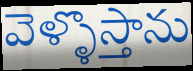
వెళ్ళొస్తాను